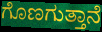
ಗೊಣಗುತ್ತಾನೆ